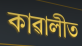
কাৱালীত